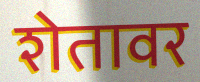
शेतावर